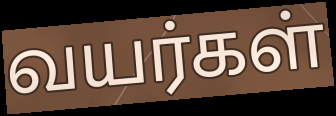
வயர்கள்